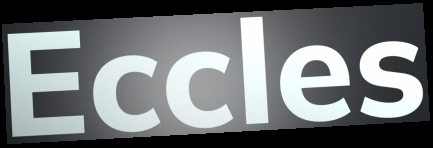
Eccles